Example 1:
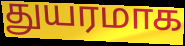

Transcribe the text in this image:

துயரமாக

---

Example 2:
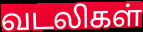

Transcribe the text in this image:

வடலிகள்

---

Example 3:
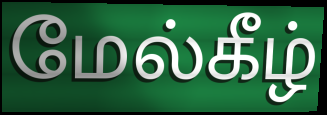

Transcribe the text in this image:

மேல்கீழ்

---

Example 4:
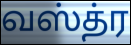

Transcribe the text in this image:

வஸ்த்ர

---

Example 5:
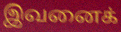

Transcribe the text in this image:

இவனைக்